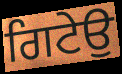
ਗਿਟੇਉ